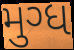
મુગ્ધ